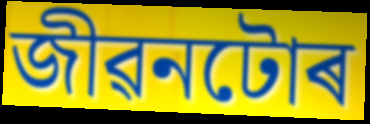
জীৱনটোৰ